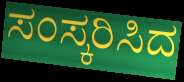
ಸಂಸ್ಕರಿಸಿದ